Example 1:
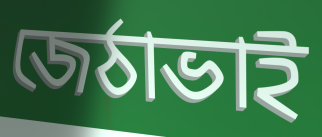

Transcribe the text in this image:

জেঠাভাই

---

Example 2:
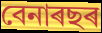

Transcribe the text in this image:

বেনাৰছৰ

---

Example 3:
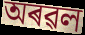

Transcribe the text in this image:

অৰৱল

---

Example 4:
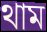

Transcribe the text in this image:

থাম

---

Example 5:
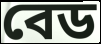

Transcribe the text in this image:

বেড